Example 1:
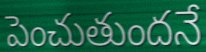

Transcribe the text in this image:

పెంచుతుందనే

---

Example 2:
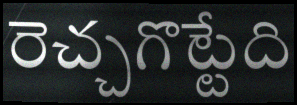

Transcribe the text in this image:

రెచ్చగొట్టేది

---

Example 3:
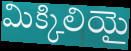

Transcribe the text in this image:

మిక్కిలియై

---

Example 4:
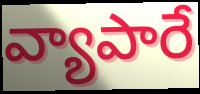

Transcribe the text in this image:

వ్యాపారే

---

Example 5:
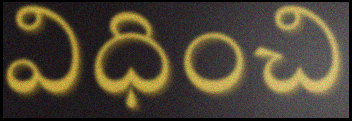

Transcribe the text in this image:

విధించి